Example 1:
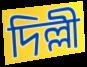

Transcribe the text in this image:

দিল্লী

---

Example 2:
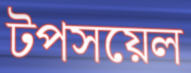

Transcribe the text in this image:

টপসয়েল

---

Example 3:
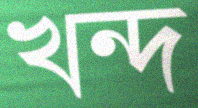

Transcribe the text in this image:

খন্দ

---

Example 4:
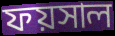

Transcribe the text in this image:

ফয়সাল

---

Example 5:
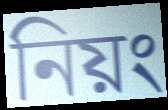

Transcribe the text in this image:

নিয়ং